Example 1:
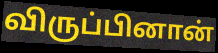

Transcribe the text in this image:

விருப்பினான்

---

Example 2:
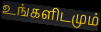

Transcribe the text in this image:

உங்களிடமும்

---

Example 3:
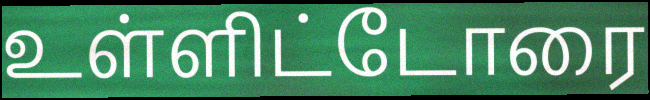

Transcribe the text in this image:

உள்ளிட்டோரை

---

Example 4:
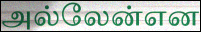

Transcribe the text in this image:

அல்லேன்என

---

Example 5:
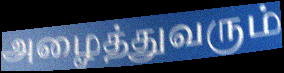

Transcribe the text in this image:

அழைத்துவரும்